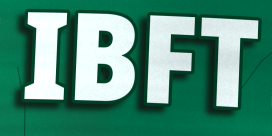
IBFT